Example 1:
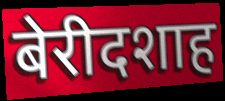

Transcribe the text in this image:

बेरीदशाह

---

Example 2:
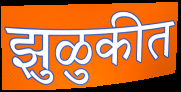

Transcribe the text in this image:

झुळुकीत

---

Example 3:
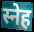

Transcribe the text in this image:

स्नेह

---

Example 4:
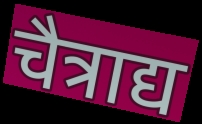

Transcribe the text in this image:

चैत्राद्य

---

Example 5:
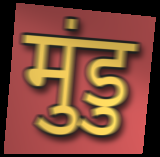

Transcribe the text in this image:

मुंडु